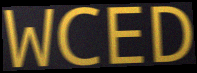
WCED